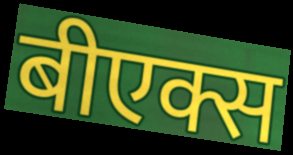
बीएक्स